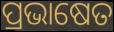
ପ୍ରଭାଷେତ